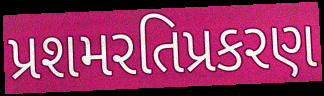
પ્રશમરતિપ્રકરણ